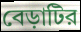
বেড়াটির